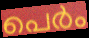
പെർം